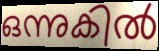
ഒന്നുകിൽ